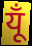
यूँ